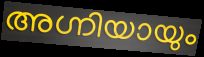
അഗ്നിയായും